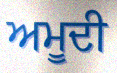
ਅਮੂਦੀ